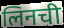
लिनची